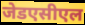
जेडएसीएल